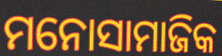
ମନୋସାମାଜିକ